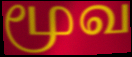
மூவ